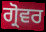
ਗ੍ਰੋਵਰ